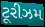
ટૂરીઝમ